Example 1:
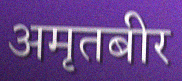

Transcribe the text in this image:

अमृतबीर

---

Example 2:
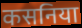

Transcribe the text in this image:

कसनिया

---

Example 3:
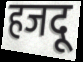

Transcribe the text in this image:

हजदू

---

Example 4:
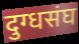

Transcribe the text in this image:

दुग्धसंघ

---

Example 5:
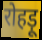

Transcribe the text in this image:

रोहड़ू